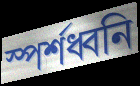
স্পৰ্শধ্বনি